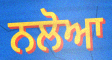
ਨਲੋਆ